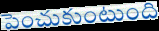
పెంచుకుంటుంది